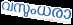
വസുംധരാ